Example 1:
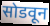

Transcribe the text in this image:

सोडवून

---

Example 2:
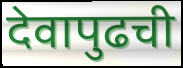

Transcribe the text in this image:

देवापुढची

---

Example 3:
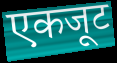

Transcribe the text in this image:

एकजूट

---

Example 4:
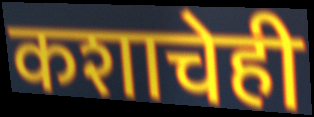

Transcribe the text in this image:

कशाचेही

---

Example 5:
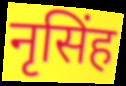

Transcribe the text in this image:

नृसिंह